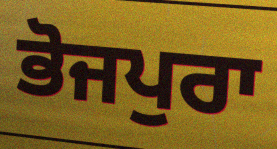
ਭੋਜਪੁਰਾ